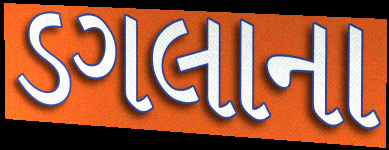
ડગલાના